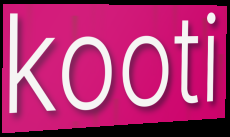
kooti